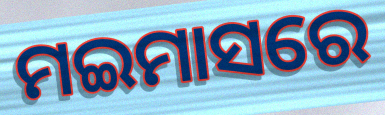
ମଇମାସରେ